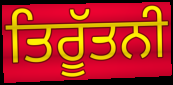
ਤਿਰੂੱਤਨੀ